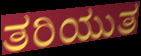
ತರಿಯುತ